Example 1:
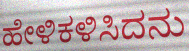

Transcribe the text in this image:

ಹೇಳಿಕಳಿಸಿದನು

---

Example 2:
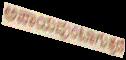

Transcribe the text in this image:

ಅಪಾಯವುಂಟಾಗುತ್ತದೆ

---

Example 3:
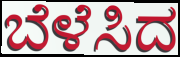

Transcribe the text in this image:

ಬೆಳೆಸಿದ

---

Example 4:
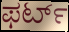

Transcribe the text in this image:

ಫರ್ಟ್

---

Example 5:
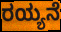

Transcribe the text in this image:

ರಯ್ಯನೆ